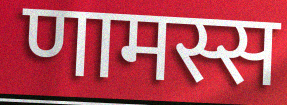
णामस्स